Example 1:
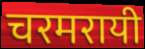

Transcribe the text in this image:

चरमरायी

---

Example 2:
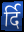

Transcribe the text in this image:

र्दि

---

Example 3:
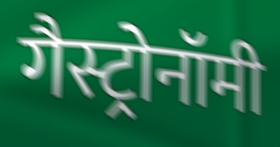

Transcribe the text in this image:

गैस्ट्रोनॉमी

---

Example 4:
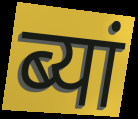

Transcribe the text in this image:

ब्यां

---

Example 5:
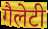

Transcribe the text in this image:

गैलेटी